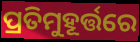
ପ୍ରତିମୁହୂର୍ତ୍ତରେ